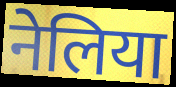
नेलिया